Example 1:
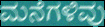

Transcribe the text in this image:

ಮನೆಗಳಿವು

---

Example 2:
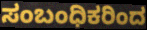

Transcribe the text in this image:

ಸಂಬಂಧಿಕರಿಂದ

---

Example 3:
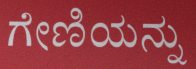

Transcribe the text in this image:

ಗೇಣಿಯನ್ನು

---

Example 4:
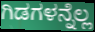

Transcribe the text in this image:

ಗಿಡಗಳನ್ನೆಲ್ಲ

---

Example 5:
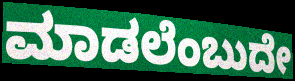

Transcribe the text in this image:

ಮಾಡಲೆಂಬುದೇ